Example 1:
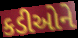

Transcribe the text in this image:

કડીઓને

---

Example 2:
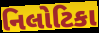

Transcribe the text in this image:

નિલોટિકા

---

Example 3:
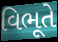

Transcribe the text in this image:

વિભૂતે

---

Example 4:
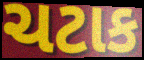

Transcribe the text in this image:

ચટાક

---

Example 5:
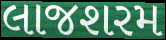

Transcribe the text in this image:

લાજશરમ